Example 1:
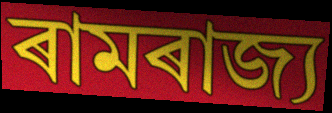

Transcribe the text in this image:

ৰামৰাজ্য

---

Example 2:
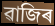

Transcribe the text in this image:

ৱাজিৰ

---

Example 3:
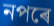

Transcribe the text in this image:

নপৰে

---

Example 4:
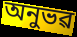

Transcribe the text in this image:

অনুভৱ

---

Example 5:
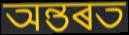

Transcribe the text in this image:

অন্তৰত